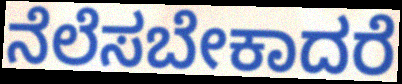
ನೆಲೆಸಬೇಕಾದರೆ